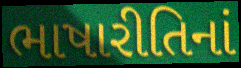
ભાષારીતિનાં